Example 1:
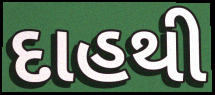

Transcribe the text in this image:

દાહથી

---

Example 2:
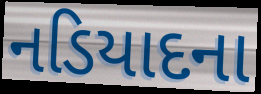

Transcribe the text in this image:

નડિયાદના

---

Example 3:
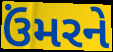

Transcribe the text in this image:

ઉંમરને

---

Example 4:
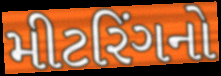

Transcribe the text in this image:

મીટરિંગનો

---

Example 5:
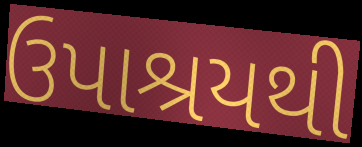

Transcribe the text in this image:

ઉપાશ્રયથી